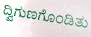
ದ್ವಿಗುಣಗೊಂಡಿತು